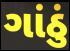
ગાંઠું